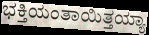
ಭಕ್ತಿಯಂತಾಯಿತ್ತಯ್ಯಾ